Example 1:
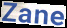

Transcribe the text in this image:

Zane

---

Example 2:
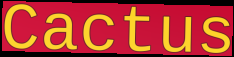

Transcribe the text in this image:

Cactus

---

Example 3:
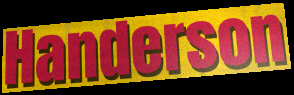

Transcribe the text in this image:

Handerson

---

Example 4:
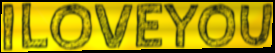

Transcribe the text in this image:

ILOVEYOU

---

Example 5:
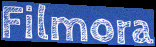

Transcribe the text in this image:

Filmora